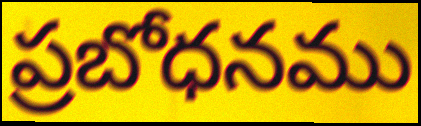
ప్రబోధనము